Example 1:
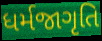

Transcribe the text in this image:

ધર્મજાગૃતિ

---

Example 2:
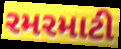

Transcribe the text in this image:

રમરમાટી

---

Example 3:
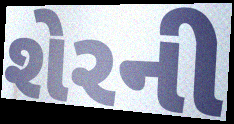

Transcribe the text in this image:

શેરની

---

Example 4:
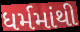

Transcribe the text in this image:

ધર્મમાંથી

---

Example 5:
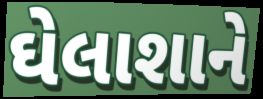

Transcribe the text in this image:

ઘેલાશાને